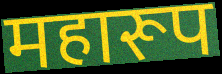
महारूप